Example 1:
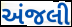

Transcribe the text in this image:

અંજલી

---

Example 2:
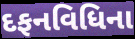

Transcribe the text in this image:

દફનવિધિના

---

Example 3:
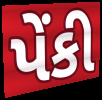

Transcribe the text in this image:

પેંકી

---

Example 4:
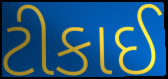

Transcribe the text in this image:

ટીકાઈ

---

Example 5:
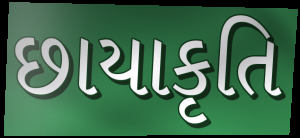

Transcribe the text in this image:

છાયાકૃતિ